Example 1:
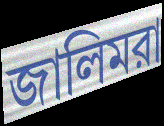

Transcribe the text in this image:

জালিমরা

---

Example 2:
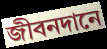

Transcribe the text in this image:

জীবনদানে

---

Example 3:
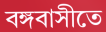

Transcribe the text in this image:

বঙ্গবাসীতে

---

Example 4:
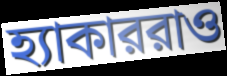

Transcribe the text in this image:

হ্যাকাররাও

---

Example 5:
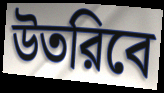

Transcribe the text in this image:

উতরিবে